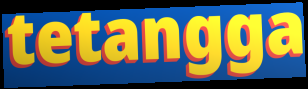
tetangga